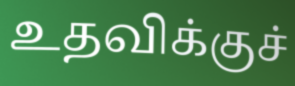
உதவிக்குச்